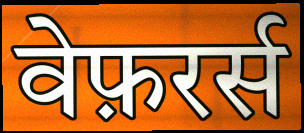
वेफ़रर्स